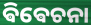
ଵିଵେଚନା